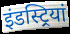
इंडस्ट्रियां